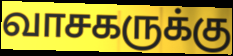
வாசகருக்கு